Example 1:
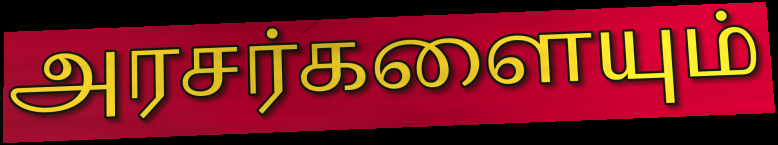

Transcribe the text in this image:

அரசர்களையும்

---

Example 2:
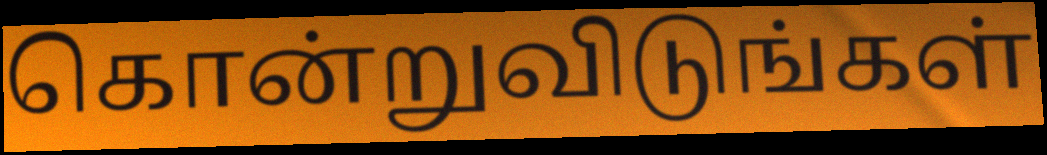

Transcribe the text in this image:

கொன்றுவிடுங்கள்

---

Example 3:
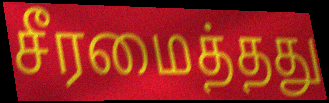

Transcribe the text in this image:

சீரமைத்தது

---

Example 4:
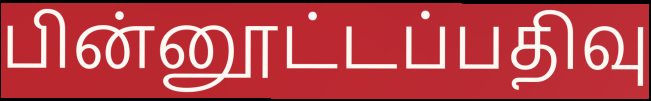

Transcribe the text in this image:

பின்னூட்டப்பதிவு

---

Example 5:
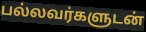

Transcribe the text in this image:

பல்லவர்களுடன்